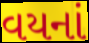
વયનાં